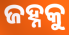
ଜହ୍ନକୁ